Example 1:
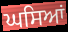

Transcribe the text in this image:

ਘਸਿਆਂ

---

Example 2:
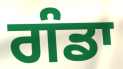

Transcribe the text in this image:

ਗੰਡਾ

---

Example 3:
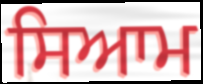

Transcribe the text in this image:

ਸਿਆਮ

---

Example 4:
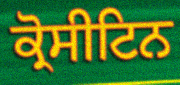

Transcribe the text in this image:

ਕ੍ਰੋਸੀਟਿਨ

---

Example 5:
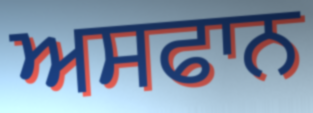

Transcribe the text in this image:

ਅਸਫਾਨ